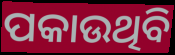
ପକାଉଥିବି